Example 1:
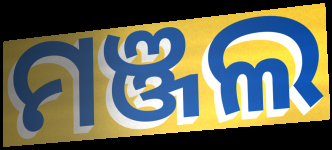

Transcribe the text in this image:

ମଞ୍ଜଲ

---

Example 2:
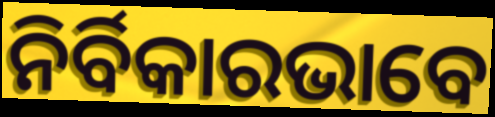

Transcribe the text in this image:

ନିର୍ବିକାରଭାବେ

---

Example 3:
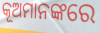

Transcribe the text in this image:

କୂଅମାନଙ୍କରେ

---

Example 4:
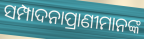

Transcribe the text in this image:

ସମ୍ପାଦନାପ୍ରାଣୀମାନଙ୍କ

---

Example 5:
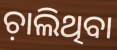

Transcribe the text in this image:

ଚ଼ାଲିଥିବା